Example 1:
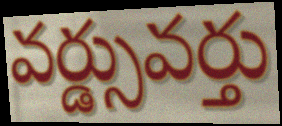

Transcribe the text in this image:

వర్డ్సువర్తు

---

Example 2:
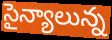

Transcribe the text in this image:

సైన్యాలున్న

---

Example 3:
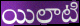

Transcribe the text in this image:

యిలాటి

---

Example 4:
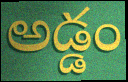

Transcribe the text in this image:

అడ్డం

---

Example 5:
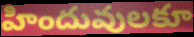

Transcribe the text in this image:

హిందువులకూ